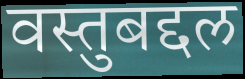
वस्तुबद्दल